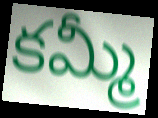
కమ్మీ